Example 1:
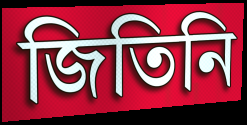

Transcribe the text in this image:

জিতিনি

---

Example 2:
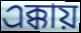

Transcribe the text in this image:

এক্কায়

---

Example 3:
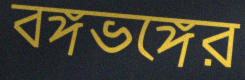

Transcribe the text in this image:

বঙ্গভঙ্গের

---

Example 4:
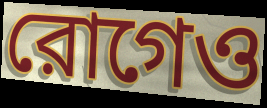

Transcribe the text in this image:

রোগেও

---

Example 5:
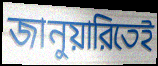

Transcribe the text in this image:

জানুয়ারিতেই